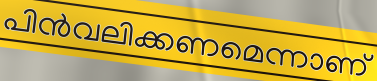
പിൻവലിക്കണമെന്നാണ്